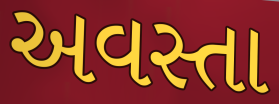
અવસ્તા